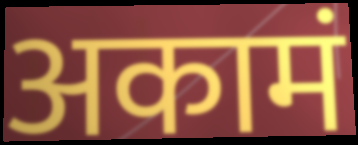
अकामं